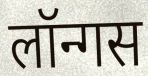
लॉन्गस